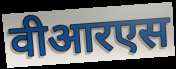
वीआरएस